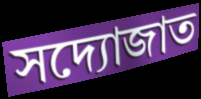
সদ্যোজাত